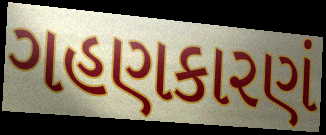
ગહણકારણં